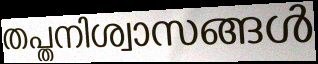
തപ്തനിശ്വാസങ്ങൾ